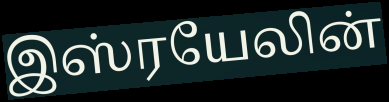
இஸ்ரயேலின்